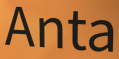
Anta